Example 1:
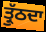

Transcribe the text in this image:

ਤ੍ਰੁੱਠਦਾ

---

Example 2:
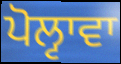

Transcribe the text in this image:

ਪੋਲ੍ਟਾਵਾ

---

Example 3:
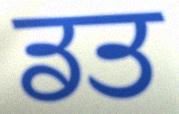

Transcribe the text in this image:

ਡਤ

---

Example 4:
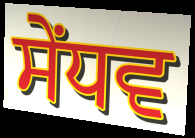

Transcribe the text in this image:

ਸੇਂਧਵ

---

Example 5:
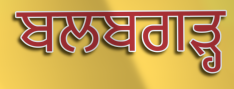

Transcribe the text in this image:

ਬਲਬਗੜ੍ਹ